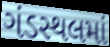
ગંડસ્થલમાં